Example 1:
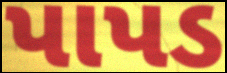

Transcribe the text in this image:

પાપડ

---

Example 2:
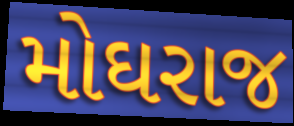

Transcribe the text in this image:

મોઘરાજ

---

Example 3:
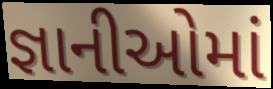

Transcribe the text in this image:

જ્ઞાનીઓમાં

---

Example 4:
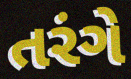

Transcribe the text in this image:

તરંગે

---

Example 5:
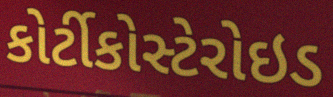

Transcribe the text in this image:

કોર્ટીકોસ્ટેરોઇડ